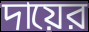
দায়ের